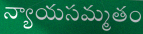
న్యాయసమ్మతం